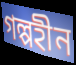
গল্পহীন